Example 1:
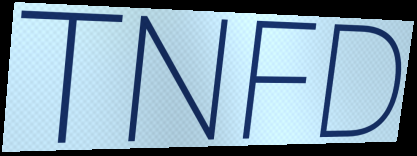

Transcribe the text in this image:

TNFD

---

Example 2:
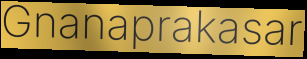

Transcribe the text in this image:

Gnanaprakasar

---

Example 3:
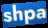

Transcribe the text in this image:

shpa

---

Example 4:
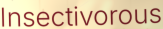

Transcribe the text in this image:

Insectivorous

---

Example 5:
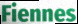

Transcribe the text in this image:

Fiennes